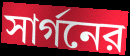
সার্গনের